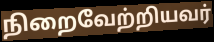
நிறைவேற்றியவர்